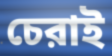
চেরাই